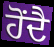
ਹੋਂਦੈ